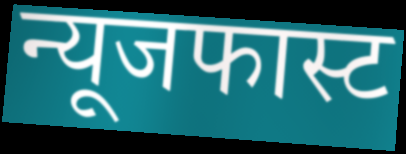
न्यूजफास्ट